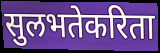
सुलभतेकरिता